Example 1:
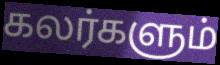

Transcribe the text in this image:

கலர்களும்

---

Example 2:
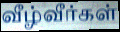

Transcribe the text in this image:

வீழ்வீர்கள்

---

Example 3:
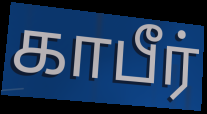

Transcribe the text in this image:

காபீர்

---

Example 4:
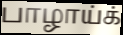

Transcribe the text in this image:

பாழாய்க்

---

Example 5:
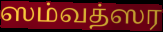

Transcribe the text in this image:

ஸம்வத்ஸர